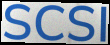
SCSI